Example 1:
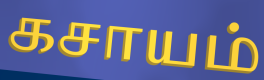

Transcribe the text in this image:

கசாயம்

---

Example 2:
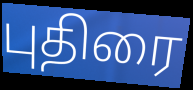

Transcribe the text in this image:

புதிரை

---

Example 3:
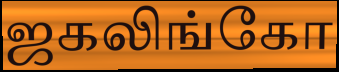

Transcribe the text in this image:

ஜகலிங்கோ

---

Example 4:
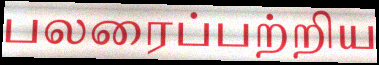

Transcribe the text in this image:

பலரைப்பற்றிய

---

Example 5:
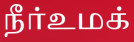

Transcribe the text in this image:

நீர்உமக்